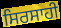
ਸਿਰਸਾਹੀ